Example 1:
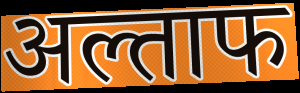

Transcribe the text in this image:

अल्ताफ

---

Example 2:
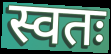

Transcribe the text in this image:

स्वतः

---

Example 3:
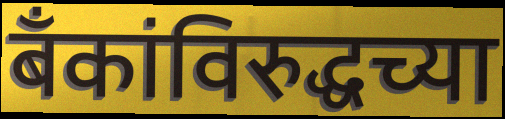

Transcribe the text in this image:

बँकांविरुद्धच्या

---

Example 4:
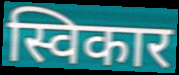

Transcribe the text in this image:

स्विकार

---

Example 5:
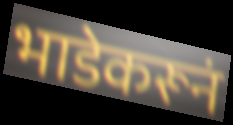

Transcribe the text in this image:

भाडेकरूनं